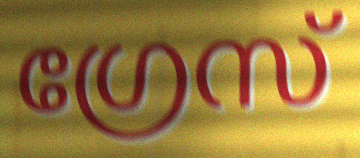
ഗ്രേസ്